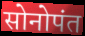
सोनोपंत